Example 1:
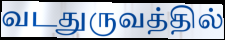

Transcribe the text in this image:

வடதுருவத்தில்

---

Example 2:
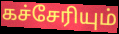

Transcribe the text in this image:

கச்சேரியும்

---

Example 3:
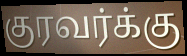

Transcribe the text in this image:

குரவர்க்கு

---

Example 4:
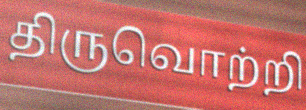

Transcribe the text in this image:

திருவொற்றி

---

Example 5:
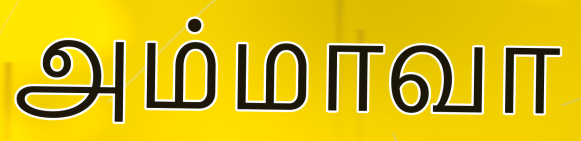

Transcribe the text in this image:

அம்மாவா